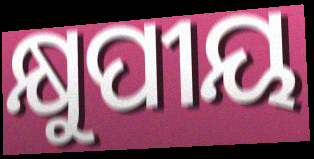
କ୍ଷୁପୀୟ